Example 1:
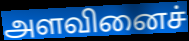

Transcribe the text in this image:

அளவினைச்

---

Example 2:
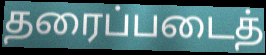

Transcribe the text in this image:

தரைப்படைத்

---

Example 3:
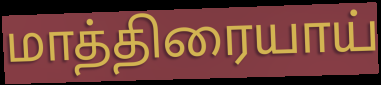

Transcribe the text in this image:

மாத்திரையாய்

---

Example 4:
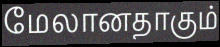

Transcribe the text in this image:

மேலானதாகும்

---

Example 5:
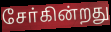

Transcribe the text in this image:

சேர்கின்றது